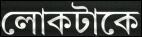
লোকটাকে